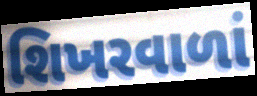
શિખરવાળાં